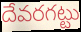
దేవరగట్టు